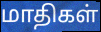
மாதிகள்